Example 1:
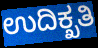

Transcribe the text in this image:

ಉದಿಕ್ಖತಿ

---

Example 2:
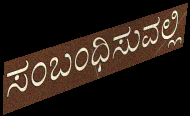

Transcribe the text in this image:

ಸಂಬಂಧಿಸುವಲ್ಲಿ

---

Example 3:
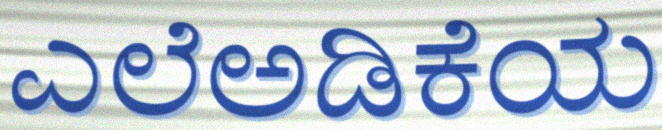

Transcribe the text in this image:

ಎಲೆಅಡಿಕೆಯ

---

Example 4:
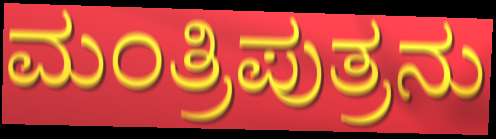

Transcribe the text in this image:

ಮಂತ್ರಿಪುತ್ರನು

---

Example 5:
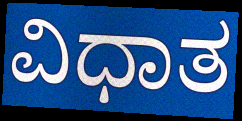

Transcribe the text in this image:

ವಿಧಾತ